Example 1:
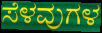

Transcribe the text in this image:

ಸೆಳವುಗಳ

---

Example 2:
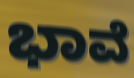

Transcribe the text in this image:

ಭಾವೆ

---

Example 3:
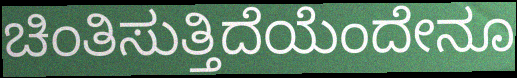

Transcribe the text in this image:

ಚಿಂತಿಸುತ್ತಿದೆಯೆಂದೇನೂ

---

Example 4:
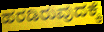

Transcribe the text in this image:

ಹರಡಿರುವುದಕ್ಕೆ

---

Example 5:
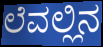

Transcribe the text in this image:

ಲೆವಲ್ಲಿನ